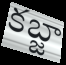
కబ్జా